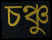
চঞ্চু